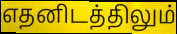
எதனிடத்திலும்